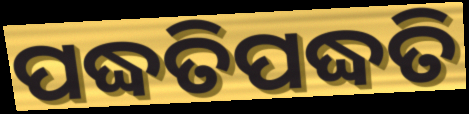
ପଦ୍ଧତିପଦ୍ଧତି